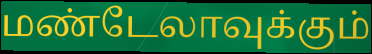
மண்டேலாவுக்கும்